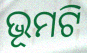
ଭୂମଟି